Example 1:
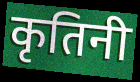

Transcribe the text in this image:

कृतिनी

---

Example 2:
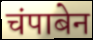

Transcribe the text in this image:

चंपाबेन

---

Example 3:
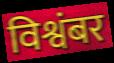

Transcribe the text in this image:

विश्वंबर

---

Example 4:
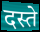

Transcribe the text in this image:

दस्ते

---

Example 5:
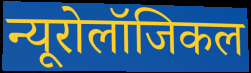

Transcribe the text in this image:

न्यूरोलॉजिकल